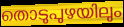
തൊടുപുഴയിലും